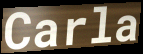
Carla